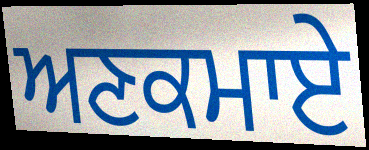
ਅਣਕਮਾਏ